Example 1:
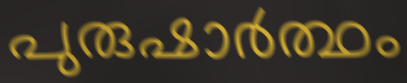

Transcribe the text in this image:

പുരുഷാർത്ഥം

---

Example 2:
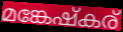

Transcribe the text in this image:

മങ്കേഷ്കര്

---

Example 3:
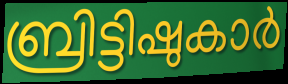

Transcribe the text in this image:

ബ്രിട്ടിഷുകാർ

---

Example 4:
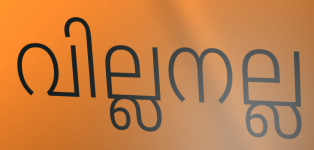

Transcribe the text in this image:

വില്ലനല്ല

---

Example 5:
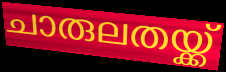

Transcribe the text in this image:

ചാരുലതയ്ക്ക്